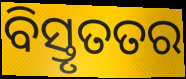
ବିସ୍ତୃତତର